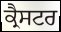
ਕ੍ਰੈਸਟਰ